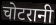
चोटरानी